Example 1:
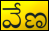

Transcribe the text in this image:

వేణ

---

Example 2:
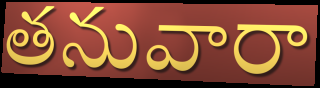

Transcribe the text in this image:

తనువారా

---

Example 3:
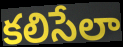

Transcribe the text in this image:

కలిసేలా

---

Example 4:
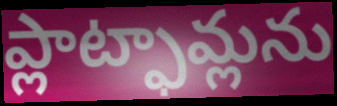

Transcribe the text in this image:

ప్లాట్ఫామ్లను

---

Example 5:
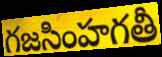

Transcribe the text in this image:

గజసింహగతీ